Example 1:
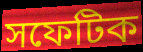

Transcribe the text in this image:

সফেটিক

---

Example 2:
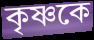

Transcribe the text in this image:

কৃষ্ণকে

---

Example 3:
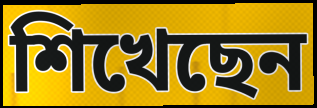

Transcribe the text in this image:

শিখেছেন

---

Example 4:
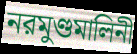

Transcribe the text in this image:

নরমুণ্ডমালিনী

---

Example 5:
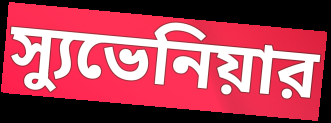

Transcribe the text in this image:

স্যুভেনিয়ার